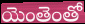
యెంతెంతో